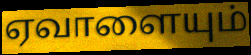
ஏவாளையும்